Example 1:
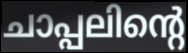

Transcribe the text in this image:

ചാപ്പലിന്റെ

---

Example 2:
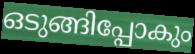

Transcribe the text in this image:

ഒടുങ്ങിപ്പോകും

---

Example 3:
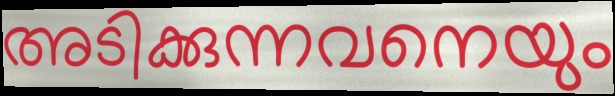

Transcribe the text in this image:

അടിക്കുന്നവനെയും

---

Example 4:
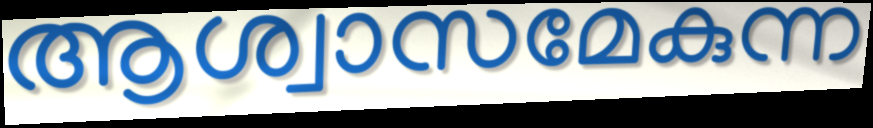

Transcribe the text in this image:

ആശ്വാസമേകുന്ന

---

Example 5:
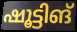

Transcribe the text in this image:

ഷൂട്ടിങ്